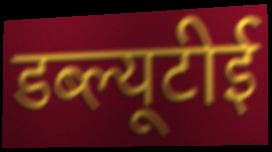
डब्ल्यूटीई